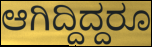
ಆಗಿದ್ದಿದ್ದರೂ